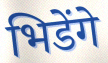
भिडेंगे